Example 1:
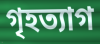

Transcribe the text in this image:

গৃহত্যাগ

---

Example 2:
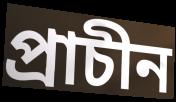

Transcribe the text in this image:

প্ৰাচীন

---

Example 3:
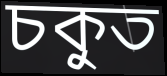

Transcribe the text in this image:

চকুত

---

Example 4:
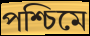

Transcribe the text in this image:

পশ্চিমে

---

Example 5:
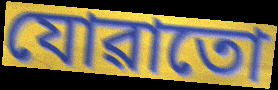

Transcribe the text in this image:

যোৱাতো